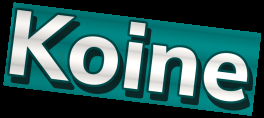
Koine